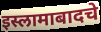
इस्लामाबादचे